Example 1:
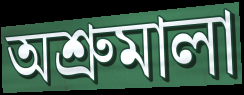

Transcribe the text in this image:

অশ্রুমালা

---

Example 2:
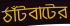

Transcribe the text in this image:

ঠাঁটবাটের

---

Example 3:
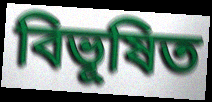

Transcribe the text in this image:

বিভূষিত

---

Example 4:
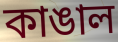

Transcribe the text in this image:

কাঙাল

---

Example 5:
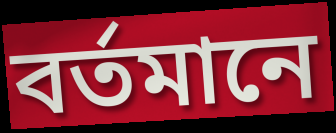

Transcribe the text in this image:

বর্তমানে